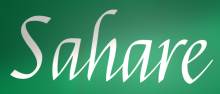
Sahare